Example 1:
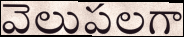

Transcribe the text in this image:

వెలుపలగా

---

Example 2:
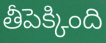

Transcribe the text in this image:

తీపెక్కింది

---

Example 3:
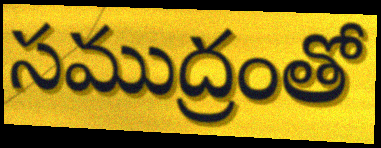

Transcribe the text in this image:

సముద్రంతో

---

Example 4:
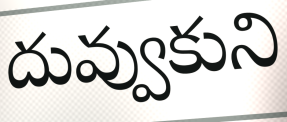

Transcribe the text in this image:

దువ్వుకుని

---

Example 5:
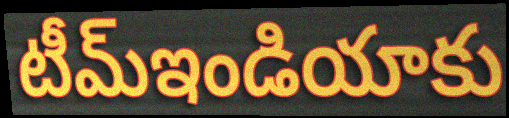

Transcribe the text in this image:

టీమ్ఇండియాకు